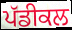
ਪੱਡੀਕਲ